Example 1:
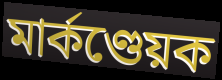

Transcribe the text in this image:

মাৰ্কণ্ডেয়ক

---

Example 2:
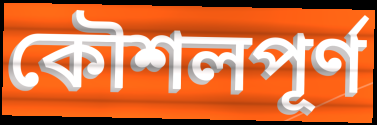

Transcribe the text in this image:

কৌশলপূৰ্ণ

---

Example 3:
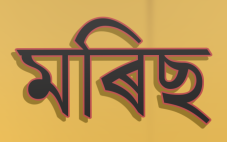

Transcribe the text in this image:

মৰিছ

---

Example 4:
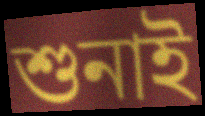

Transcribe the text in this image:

শুনাই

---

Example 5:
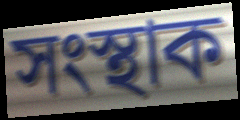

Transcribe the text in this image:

সংস্থাক